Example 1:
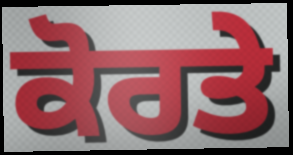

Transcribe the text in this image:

ਕੋਰਤੇ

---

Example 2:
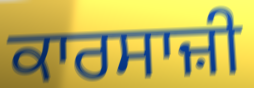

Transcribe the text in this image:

ਕਾਰਸਾਜ਼ੀ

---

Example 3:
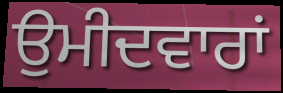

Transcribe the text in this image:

ਉੁਮੀਦਵਾਰਾਂ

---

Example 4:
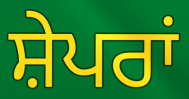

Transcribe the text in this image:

ਸ਼ੇਪਰਾਂ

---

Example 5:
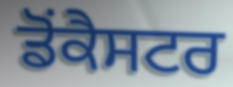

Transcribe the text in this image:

ਡੋਂਕੈਸਟਰ